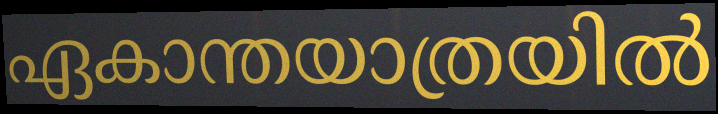
ഏകാന്തയാത്രയിൽ